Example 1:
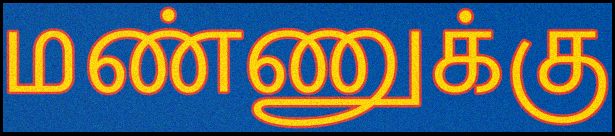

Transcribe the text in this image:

மண்ணுக்கு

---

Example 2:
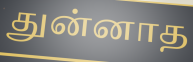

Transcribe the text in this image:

துன்னாத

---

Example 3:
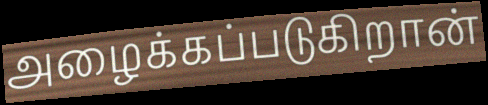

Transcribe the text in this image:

அழைக்கப்படுகிறான்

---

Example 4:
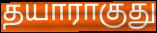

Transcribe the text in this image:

தயாராகுது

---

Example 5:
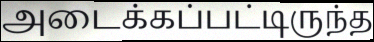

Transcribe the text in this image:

அடைக்கப்பட்டிருந்த